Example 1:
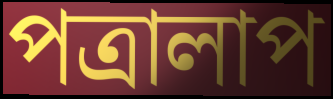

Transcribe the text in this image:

পত্ৰালাপ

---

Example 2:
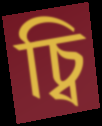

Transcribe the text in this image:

চ্বি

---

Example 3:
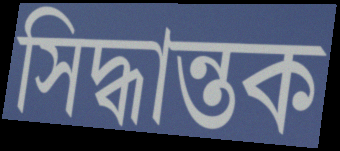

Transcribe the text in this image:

সিদ্ধান্তক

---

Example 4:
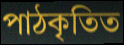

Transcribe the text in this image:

পাঠকৃতিত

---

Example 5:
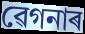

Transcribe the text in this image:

ৱেগনাৰ